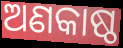
ଅଣକାଷ୍ଠ